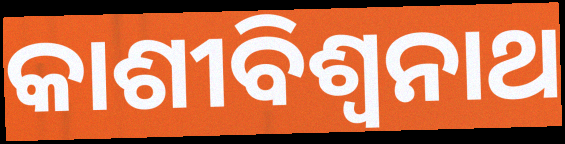
କାଶୀବିଶ୍ୱନାଥ